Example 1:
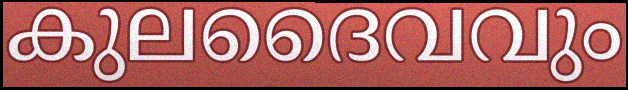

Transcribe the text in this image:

കുലദൈവവും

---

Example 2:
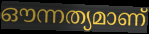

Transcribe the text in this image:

ഔന്നത്യമാണ്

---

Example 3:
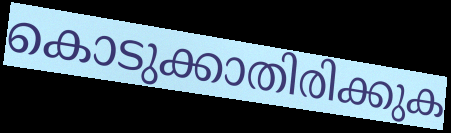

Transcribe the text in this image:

കൊടുക്കാതിരിക്കുക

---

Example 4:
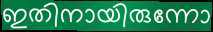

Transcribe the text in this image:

ഇതിനായിരുന്നോ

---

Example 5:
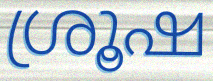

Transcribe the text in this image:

ശ്രൂഷ